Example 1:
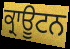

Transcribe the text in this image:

ਕ੍ਰਾਊਟਨ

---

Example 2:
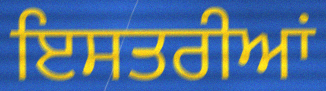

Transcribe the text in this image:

ਇਸਤਰੀਆਂ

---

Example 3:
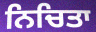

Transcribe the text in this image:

ਨਿਚਿਤਾ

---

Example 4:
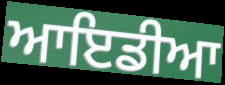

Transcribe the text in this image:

ਆਇਡੀਆ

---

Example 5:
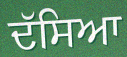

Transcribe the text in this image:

ਦੱਸਿਆ